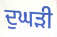
ਦੁਘੜੀ